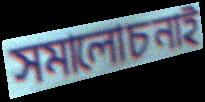
সমালোচনাই